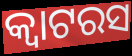
କ୍ୱାଟରସ